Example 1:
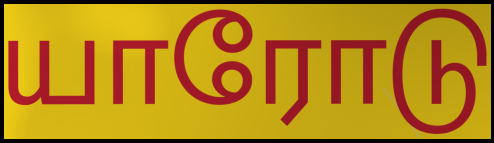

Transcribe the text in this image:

யாரோடு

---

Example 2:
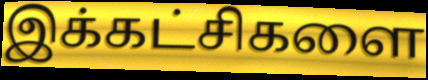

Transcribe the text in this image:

இக்கட்சிகளை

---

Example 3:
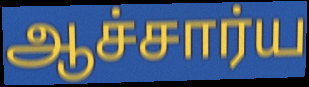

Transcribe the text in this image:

ஆச்சார்ய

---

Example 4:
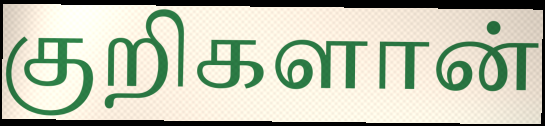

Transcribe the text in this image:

குறிகளான்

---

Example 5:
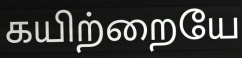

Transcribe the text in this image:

கயிற்றையே